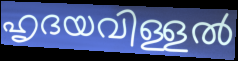
ഹൃദയവിള്ളൽ